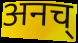
अनच्